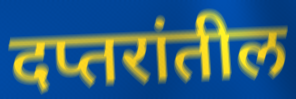
दप्तरांतील